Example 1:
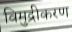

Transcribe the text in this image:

विमुद्रीकरण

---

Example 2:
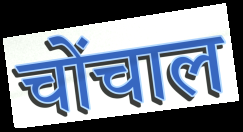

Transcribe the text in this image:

चोंचाल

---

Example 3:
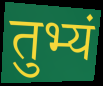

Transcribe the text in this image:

तुभ्यं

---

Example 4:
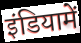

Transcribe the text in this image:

इंडियामें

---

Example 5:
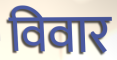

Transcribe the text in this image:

विवार